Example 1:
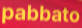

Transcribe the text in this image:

pabbato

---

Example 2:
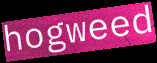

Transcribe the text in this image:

hogweed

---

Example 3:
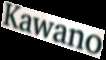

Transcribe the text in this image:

Kawano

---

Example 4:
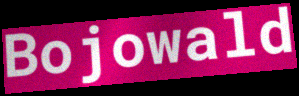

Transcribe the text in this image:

Bojowald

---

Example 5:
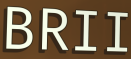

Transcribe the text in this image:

BRII